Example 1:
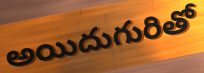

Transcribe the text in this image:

అయిదుగురితో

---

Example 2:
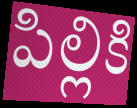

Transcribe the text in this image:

పిల్లికి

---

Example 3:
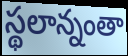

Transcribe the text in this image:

స్థలాన్నంతా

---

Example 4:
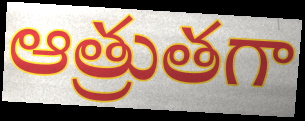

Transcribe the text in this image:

ఆత్రుతగా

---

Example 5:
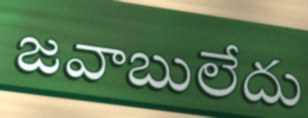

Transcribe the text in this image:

జవాబులేదు